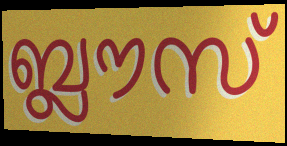
ബ്ലൗസ്